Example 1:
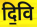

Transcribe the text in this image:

दि॒वि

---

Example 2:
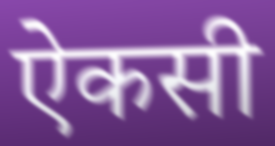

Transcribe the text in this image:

ऐकसी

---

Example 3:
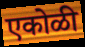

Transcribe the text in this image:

एकोळी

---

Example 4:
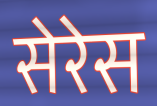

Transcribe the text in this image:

सेरेस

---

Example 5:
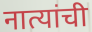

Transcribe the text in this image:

नात्यांची